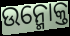
ଉନ୍ମୋକ୍ତ